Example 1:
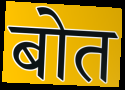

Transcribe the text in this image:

बोत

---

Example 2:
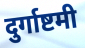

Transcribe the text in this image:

दुर्गाष्टमी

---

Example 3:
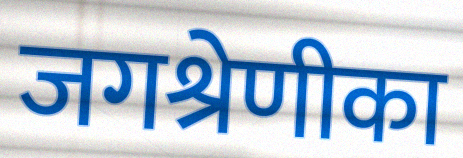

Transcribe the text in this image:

जगश्रेणीका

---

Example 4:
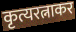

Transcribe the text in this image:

कृत्यरत्नाकर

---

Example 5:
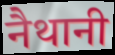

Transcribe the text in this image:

नैथानी